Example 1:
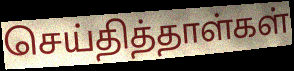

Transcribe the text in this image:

செய்தித்தாள்கள்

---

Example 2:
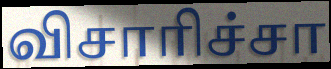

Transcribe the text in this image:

விசாரிச்சா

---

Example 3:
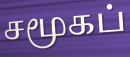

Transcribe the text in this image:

சமூகப்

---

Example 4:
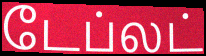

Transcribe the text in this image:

டேப்லட்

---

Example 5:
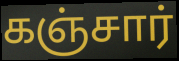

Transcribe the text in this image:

கஞ்சார்